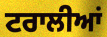
ਟਰਾਲੀਆਂ